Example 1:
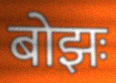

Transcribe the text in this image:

बोझः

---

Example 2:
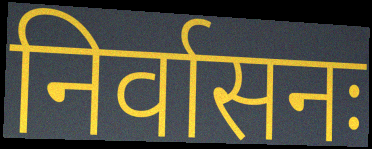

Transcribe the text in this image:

निर्वासनः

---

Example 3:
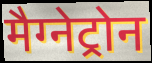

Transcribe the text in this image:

मैग्नेट्रोन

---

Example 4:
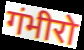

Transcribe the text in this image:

गंभीरो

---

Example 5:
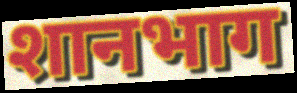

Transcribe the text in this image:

शानभाग